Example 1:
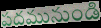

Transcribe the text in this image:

పదమునుండి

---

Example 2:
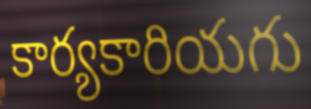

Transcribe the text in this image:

కార్యకారియగు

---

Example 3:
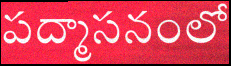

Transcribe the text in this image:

పద్మాసనంలో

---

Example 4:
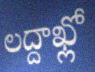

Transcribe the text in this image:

లద్దాఖ్లో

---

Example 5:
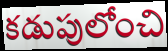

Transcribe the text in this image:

కడుపులోంచి